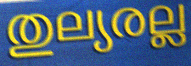
തുല്യരല്ല